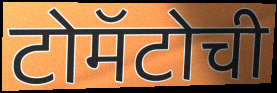
टोमॅटोची